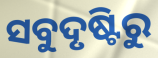
ସବୁଦୃଷ୍ଟିରୁ